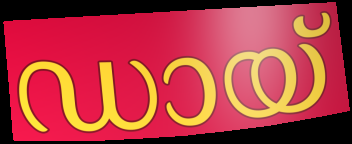
ഡായ്